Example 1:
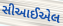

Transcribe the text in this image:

સીઆઈએલ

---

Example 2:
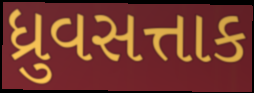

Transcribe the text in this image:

ધ્રુવસત્તાક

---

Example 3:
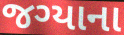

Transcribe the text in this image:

જગ્યાના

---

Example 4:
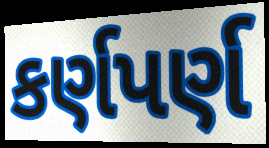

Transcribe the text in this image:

કર્ણપર્ણ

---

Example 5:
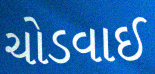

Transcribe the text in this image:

ચોડવાઈ